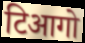
टिआगो